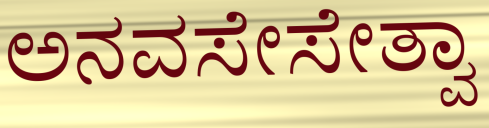
ಅನವಸೇಸೇತ್ವಾ